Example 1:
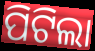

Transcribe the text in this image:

ପିଟିଲା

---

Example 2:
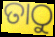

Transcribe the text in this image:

ତାଠୁ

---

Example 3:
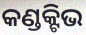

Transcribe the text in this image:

କଣ୍ଡକ୍ଟିଭ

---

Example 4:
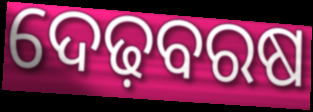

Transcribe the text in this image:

ଦେଢ଼ବରଷ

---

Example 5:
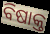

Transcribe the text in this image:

ବିଷାକ୍ତ